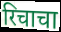
रिचाचा